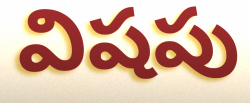
విషపు